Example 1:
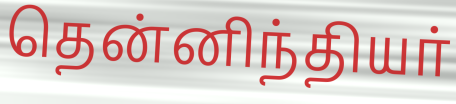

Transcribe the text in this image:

தென்னிந்தியர்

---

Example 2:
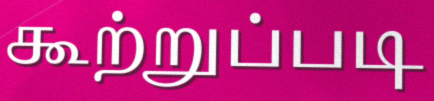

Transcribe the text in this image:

கூற்றுப்படி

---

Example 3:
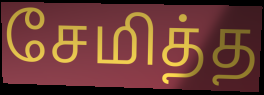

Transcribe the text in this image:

சேமித்த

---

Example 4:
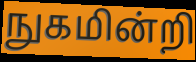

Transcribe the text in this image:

நுகமின்றி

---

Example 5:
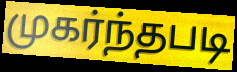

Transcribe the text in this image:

முகர்ந்தபடி